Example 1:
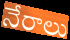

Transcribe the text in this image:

నేరాలు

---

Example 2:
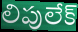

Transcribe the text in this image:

లిపులేక్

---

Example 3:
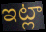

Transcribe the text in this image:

ఇట్లా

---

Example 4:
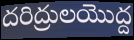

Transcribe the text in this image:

దరిద్రులయొద్ద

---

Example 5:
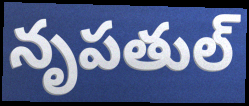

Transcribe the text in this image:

నృపతుల్